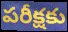
పరీక్షకు